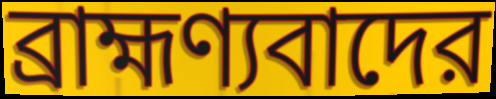
ব্রাহ্মণ্যবাদের